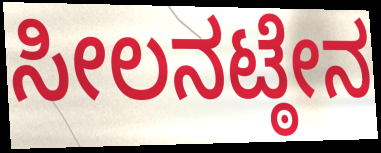
ಸೀಲನಟ್ಠೇನ